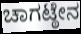
ಚಾಗಟ್ಠೇನ